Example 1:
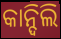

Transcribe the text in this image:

କାନ୍ଦିଲି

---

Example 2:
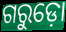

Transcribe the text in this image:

ଗରୁଡ଼ୋ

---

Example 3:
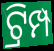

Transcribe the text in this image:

ଟ୍ରିମ୍ପ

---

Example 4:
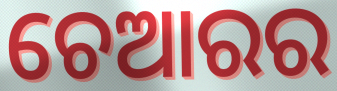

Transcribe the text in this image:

ଚେଆରର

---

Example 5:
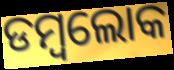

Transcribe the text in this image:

ଡମ୍ବଲୋକ